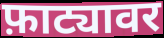
फ़ाट्यावर